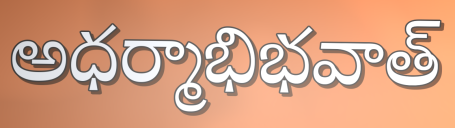
అధర్మాభిభవాత్